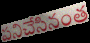
పనిచేసినంత